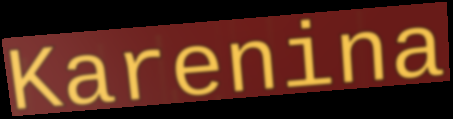
Karenina